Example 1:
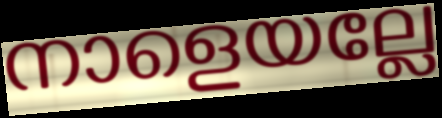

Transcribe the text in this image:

നാളെയല്ലേ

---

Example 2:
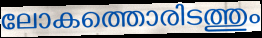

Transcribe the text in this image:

ലോകത്തൊരിടത്തും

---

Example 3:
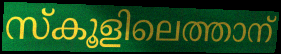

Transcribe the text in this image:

സ്കൂളിലെത്താന്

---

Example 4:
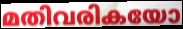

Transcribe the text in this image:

മതിവരികയോ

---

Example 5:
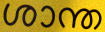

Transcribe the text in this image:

ശാന്ത